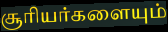
சூரியர்களையும்